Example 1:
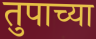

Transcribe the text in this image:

तुपाच्या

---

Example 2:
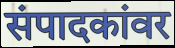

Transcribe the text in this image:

संपादकांवर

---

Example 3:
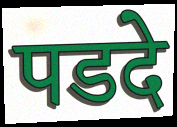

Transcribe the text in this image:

पडदे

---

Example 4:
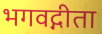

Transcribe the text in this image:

भगवद्गीता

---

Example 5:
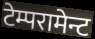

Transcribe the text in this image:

टेम्परामेन्ट